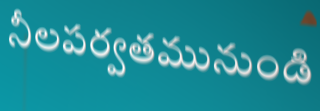
నీలపర్వతమునుండి